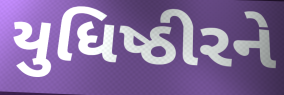
યુધિષ્ઠીરને